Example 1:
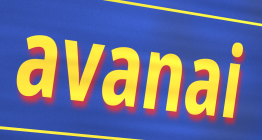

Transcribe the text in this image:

avanai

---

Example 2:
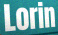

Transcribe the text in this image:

Lorin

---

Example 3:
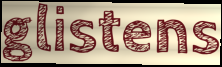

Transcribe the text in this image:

glistens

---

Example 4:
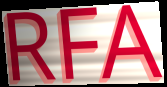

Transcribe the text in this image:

RFA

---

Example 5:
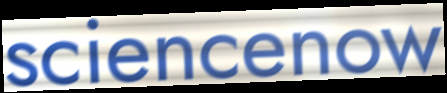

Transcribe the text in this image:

sciencenow